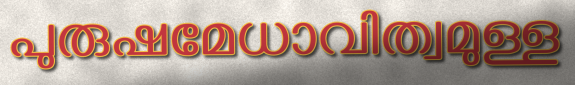
പുരുഷമേധാവിത്വമുള്ള